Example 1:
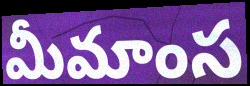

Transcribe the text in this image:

మీమాంస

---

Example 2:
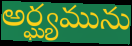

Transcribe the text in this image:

అర్ఘ్యమును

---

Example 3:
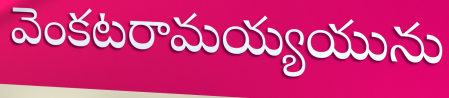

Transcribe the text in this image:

వెంకటరామయ్యయును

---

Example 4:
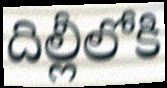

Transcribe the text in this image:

దిల్లీలోకి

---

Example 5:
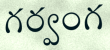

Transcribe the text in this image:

గర్వంగ